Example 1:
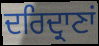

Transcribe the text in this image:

ਦਰਿਦ੍ਰਾਣਾਂ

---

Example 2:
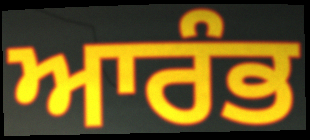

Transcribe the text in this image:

ਆਰੰਭ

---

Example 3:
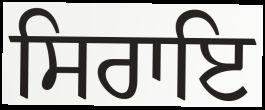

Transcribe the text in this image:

ਸਿਰਾਇ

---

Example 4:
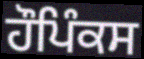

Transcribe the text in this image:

ਹੌਪਿੰਕਸ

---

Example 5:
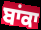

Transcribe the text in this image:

ਬਾਂਕਾ